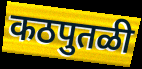
कठपुतळी